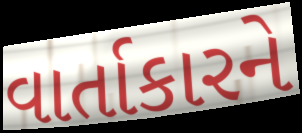
વાર્તાકારને